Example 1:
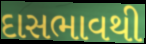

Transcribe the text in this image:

દાસભાવથી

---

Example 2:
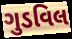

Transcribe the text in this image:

ગુડવિલ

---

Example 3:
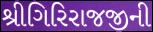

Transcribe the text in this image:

શ્રીગિરિરાજજીની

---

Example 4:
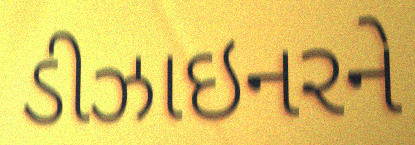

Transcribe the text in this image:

ડીઝાઇનરને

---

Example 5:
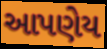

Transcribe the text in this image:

આપણેય